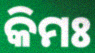
କିମଃ